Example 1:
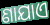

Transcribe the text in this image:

ଣାଯାଏ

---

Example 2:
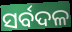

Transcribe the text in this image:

ସର୍ବଦଳ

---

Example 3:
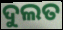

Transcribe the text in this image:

ଦୁଲତ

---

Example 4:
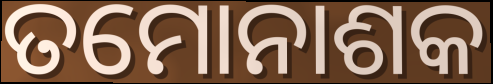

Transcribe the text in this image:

ତମୋନାଶକ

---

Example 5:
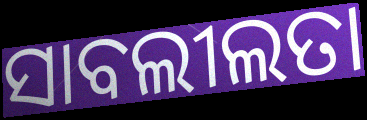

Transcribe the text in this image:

ସାବଲୀଲତା